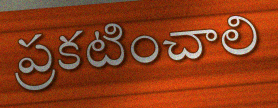
ప్రకటించాలి